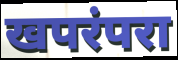
खपरंपरा